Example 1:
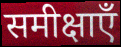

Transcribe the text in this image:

समीक्षाएँ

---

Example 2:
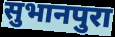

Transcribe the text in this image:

सुभानपुरा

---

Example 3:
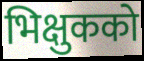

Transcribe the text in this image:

भिक्षुकको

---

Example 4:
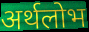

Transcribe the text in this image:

अर्थलोभ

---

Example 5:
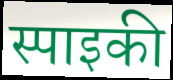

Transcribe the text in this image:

स्पाइकी